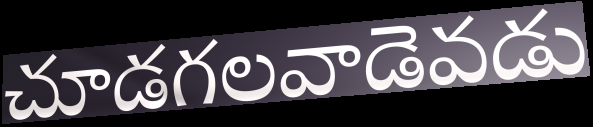
చూడగలవాడెవడు